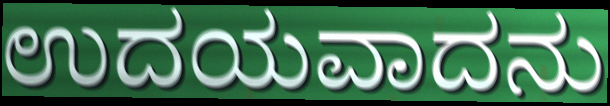
ಉದಯವಾದನು